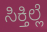
ಸಿಕ್ತಿಲ್ಲೆ